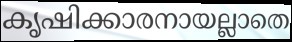
കൃഷിക്കാരനായല്ലാതെ